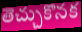
తెచ్చుకొనక